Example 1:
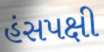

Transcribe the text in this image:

હંસપક્ષી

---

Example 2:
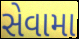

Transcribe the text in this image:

સેવામા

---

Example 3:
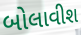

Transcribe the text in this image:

બોલાવીશ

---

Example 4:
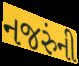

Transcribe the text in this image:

નજરુંની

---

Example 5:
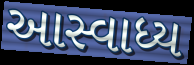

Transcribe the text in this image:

આસ્વાધ્ય